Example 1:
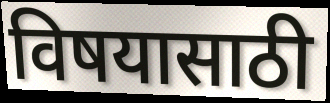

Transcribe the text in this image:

विषयासाठी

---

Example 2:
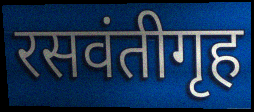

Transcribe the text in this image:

रसवंतीगृह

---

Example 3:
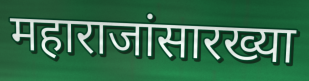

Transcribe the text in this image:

महाराजांसारख्या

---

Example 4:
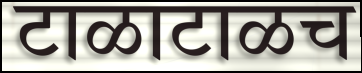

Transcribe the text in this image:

टाळाटाळच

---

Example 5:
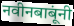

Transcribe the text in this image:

नवीनबाबूंनी